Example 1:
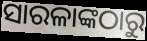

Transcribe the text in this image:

ସାରଳାଙ୍କଠାରୁ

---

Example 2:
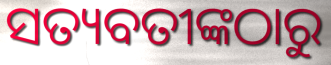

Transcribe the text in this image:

ସତ୍ୟବତୀଙ୍କଠାରୁ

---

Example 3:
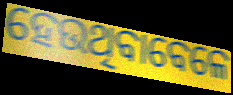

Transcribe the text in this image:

ହେଉଥିବାବେଳେ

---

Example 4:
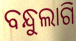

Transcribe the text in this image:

ବନ୍ଧୁଲାଗି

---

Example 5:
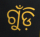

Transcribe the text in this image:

ଗୁଁଡ଼ି